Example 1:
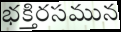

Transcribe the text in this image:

భక్తిరసమున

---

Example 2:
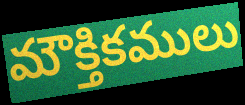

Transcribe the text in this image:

మౌక్తికములు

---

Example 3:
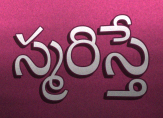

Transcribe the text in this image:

స్మరిస్తే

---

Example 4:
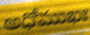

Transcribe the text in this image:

అధోముఖః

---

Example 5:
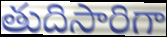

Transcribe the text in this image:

తుదిసారిగా